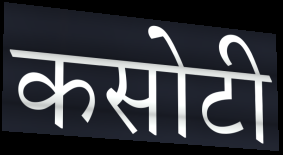
कसोटी